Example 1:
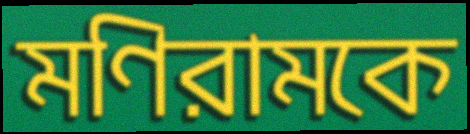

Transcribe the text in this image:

মণিরামকে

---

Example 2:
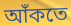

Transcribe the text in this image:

আঁকতে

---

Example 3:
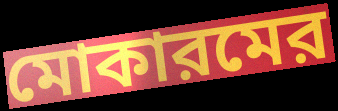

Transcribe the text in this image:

মোকারমের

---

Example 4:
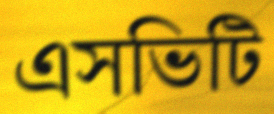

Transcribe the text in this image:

এসভিটি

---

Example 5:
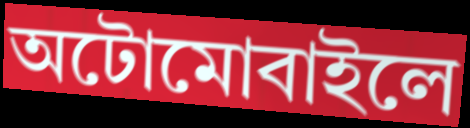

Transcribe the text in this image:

অটোমোবাইলে